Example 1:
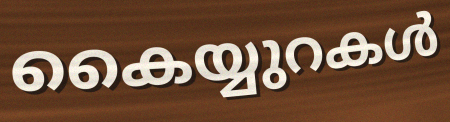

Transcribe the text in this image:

കൈയ്യുറകൾ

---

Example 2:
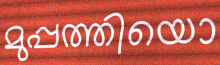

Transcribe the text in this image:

മുപ്പത്തിയൊ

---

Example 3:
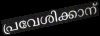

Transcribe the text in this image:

പ്രവേശിക്കാന്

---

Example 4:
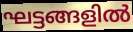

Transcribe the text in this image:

ഘട്ടങ്ങളിൽ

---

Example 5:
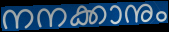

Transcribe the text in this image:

നനക്കാനും